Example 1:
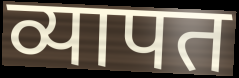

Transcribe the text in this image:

व्यापत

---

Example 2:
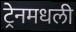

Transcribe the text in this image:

ट्रेनमधली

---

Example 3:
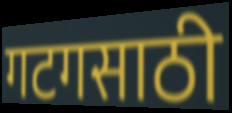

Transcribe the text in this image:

गटगसाठी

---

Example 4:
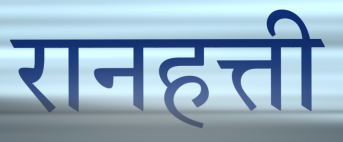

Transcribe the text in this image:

रानहत्ती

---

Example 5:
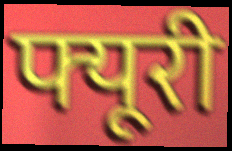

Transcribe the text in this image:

फ्यूरी